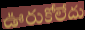
ఊరుకోలేదు